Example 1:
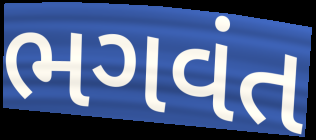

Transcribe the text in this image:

ભગવંત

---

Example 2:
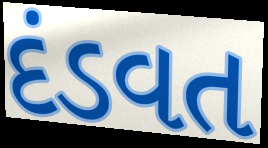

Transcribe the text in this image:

દંડવત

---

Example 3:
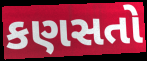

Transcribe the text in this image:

કણસતો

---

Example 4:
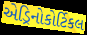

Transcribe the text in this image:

એડ્રિનોકોર્ટિકલ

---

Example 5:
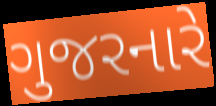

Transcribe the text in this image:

ગુજરનારે